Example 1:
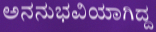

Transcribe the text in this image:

ಅನನುಭವಿಯಾಗಿದ್ದ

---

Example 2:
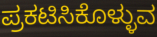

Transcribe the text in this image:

ಪ್ರಕಟಿಸಿಕೊಳ್ಳುವ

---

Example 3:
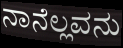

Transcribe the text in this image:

ನಾನೆಲ್ಲವನು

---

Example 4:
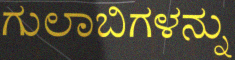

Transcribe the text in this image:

ಗುಲಾಬಿಗಳನ್ನು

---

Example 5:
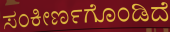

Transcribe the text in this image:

ಸಂಕೀರ್ಣಗೊಂಡಿದೆ